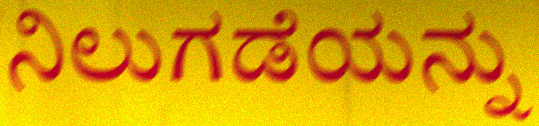
ನಿಲುಗಡೆಯನ್ನು